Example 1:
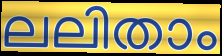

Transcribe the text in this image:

ലലിതാം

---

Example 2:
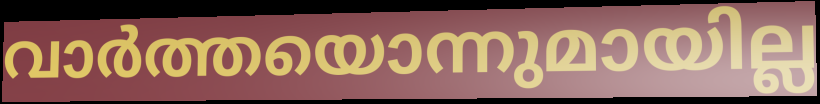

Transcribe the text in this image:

വാർത്തയൊന്നുമായില്ല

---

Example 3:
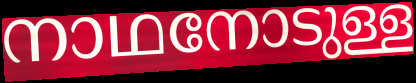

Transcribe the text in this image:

നാഥനോടുള്ള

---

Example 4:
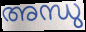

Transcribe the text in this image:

അന്ധു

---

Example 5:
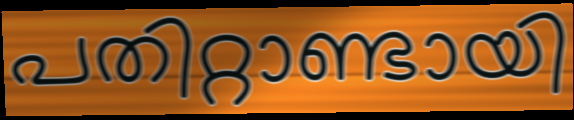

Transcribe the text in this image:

പതിറ്റാണ്ടായി